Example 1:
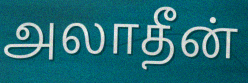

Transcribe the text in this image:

அலாதீன்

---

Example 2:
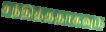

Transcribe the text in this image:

சந்தித்ததாகவும்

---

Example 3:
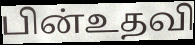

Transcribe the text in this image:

பின்உதவி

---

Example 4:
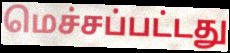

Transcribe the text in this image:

மெச்சப்பட்டது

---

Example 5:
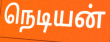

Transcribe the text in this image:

நெடியன்